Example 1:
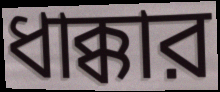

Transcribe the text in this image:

ধাক্কার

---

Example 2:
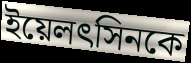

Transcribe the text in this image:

ইয়েলৎসিনকে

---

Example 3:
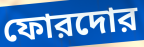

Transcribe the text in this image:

ফোরদোর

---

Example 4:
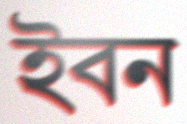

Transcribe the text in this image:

ইবন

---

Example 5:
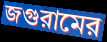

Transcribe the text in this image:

জগুরামের